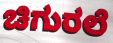
ಚಿಗುರಲೆ